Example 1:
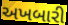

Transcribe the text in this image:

અખબારી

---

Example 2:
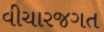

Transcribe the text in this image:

વીચારજગત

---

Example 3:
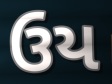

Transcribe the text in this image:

ઉય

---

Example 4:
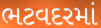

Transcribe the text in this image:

ભટવદરમાં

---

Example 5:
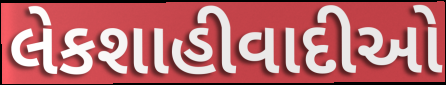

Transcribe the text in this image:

લેકશાહીવાદીઓ